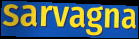
sarvagna